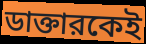
ডাক্তারকেই